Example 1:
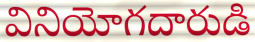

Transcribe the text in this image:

వినియోగదారుడి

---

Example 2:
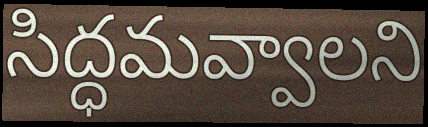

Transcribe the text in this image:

సిద్ధమవ్వాలని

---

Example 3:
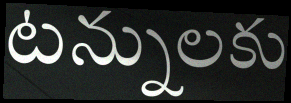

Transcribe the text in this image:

టన్నులకు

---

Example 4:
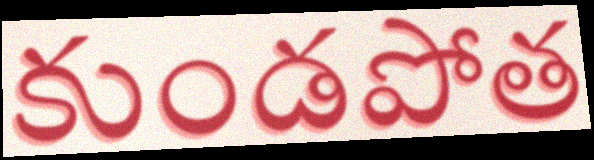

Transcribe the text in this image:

కుండపోత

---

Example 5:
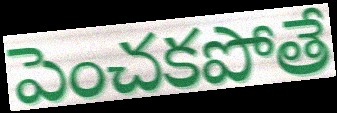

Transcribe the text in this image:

పెంచకపోతే